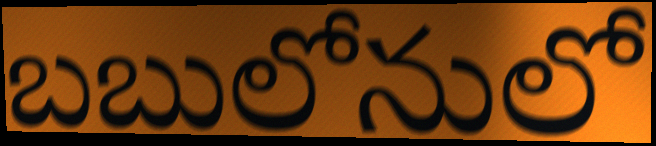
బబులోనులో